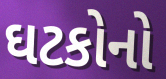
ઘટકોનો